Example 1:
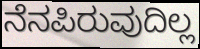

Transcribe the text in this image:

ನೆನಪಿರುವುದಿಲ್ಲ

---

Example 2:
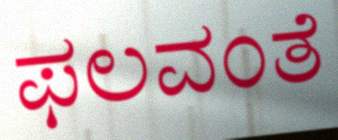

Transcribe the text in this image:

ಫಲವಂತೆ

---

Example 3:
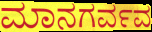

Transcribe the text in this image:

ಮಾನಗರ್ವವ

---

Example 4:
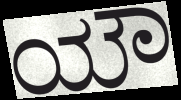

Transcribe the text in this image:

ಯೌ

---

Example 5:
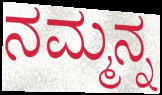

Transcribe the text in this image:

ನಮ್ಮನ್ನ